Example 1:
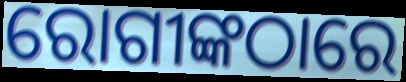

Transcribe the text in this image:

ରୋଗୀଙ୍କଠାରେ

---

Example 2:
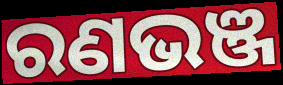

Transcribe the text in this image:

ରଣଭଞ୍ଜ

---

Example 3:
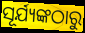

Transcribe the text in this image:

ସୂର୍ଯ୍ୟଙ୍କଠାରୁ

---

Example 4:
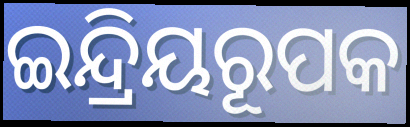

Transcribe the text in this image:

ଇନ୍ଦ୍ରିୟରୂପକ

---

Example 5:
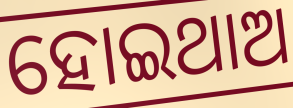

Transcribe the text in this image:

ହୋଇଥାଅ